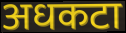
अधकटा